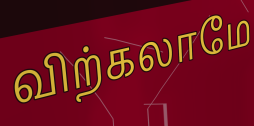
விற்கலாமே